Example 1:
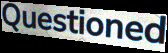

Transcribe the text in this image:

Questioned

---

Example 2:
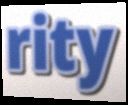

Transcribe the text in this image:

rity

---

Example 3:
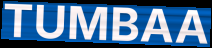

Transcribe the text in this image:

TUMBAA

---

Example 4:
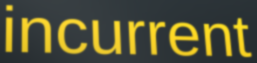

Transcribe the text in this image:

incurrent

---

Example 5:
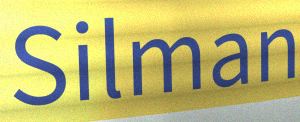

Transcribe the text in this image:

Silman